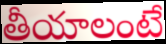
తీయాలంటే